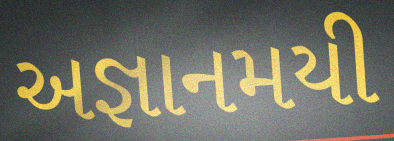
અજ્ઞાનમયી